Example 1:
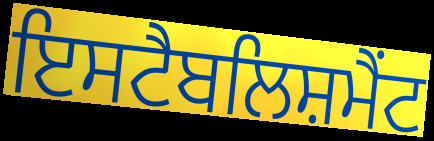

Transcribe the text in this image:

ਇਸਟੈਬਲਿਸ਼ਮੈਂਟ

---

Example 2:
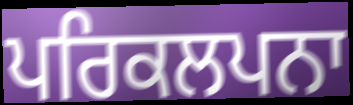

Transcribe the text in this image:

ਪਰਿਕਲਪਨਾ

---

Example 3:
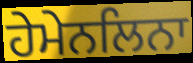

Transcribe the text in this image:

ਹੇਮੇਨਲਿਨਾ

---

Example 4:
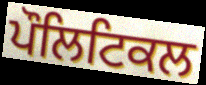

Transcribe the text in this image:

ਪੌਲਿਟਿਕਲ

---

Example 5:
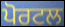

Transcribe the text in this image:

ਪੋਰਟਲ